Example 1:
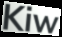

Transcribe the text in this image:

Kiw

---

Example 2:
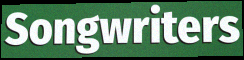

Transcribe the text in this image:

Songwriters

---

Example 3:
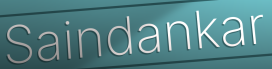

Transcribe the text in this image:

Saindankar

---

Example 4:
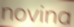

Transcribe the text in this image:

novina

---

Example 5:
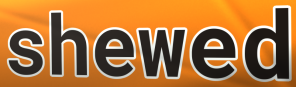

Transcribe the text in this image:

shewed